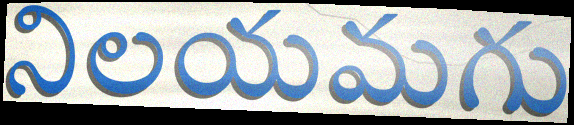
నిలయమగు